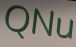
QNu